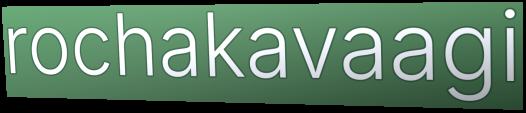
rochakavaagi